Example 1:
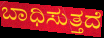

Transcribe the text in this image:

ಬಾಧಿಸುತ್ತದೆ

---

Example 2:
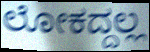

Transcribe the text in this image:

ಲೋಕದ್ದಲ್ಲ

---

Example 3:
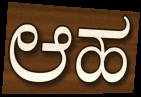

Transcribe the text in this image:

ಆಹ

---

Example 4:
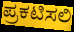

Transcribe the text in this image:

ಪ್ರಕಟಿಸಲಿ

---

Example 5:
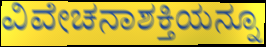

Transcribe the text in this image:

ವಿವೇಚನಾಶಕ್ತಿಯನ್ನೂ